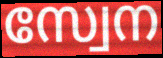
സ്വേന